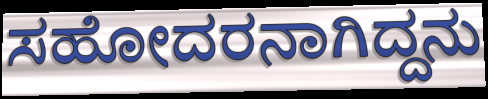
ಸಹೋದರನಾಗಿದ್ದನು